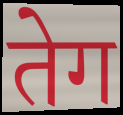
तेग